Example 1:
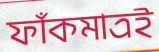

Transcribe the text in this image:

ফাঁকমাত্রই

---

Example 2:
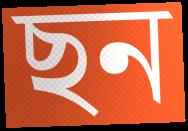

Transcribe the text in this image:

ছন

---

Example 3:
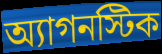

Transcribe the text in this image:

অ্যাগনস্টিক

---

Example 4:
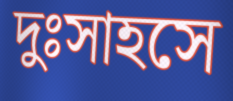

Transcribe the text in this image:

দুঃসাহসে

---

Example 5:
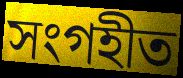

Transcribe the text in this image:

সংগহীত